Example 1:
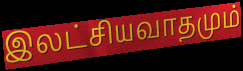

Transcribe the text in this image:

இலட்சியவாதமும்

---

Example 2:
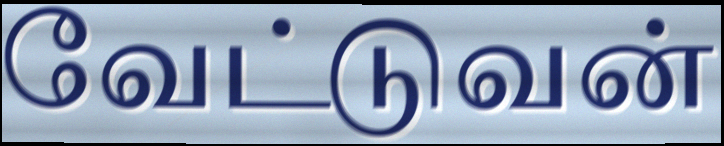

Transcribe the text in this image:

வேட்டுவன்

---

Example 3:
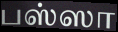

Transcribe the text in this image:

பஸ்ஸா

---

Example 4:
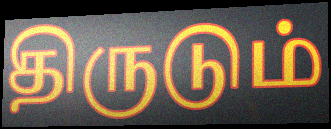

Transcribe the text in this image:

திருடும்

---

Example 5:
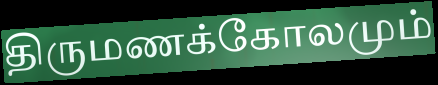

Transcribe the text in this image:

திருமணக்கோலமும்